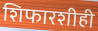
शिफारशीही